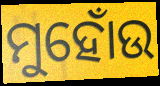
ମୁହୋଁଉ